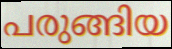
പരുങ്ങിയ